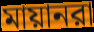
মায়ানরা